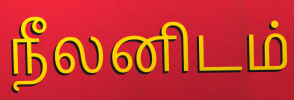
நீலனிடம்